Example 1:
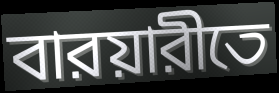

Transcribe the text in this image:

বারয়ারীতে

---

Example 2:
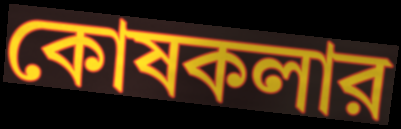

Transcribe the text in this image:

কোষকলার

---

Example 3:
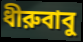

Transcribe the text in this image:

ধীরুবাবু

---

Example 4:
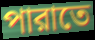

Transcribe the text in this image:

পারাতে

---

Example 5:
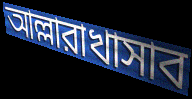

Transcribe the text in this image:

আল্লারাখাসাব